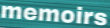
memoirs